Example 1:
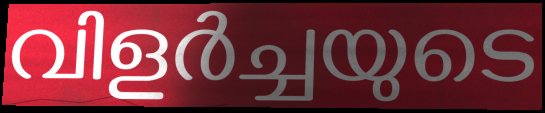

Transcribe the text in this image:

വിളർച്ചയുടെ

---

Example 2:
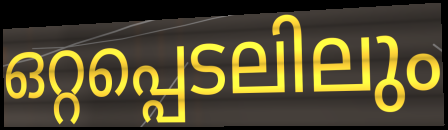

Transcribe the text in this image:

ഒറ്റപ്പെടലിലും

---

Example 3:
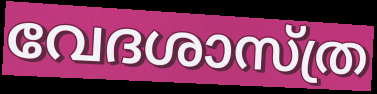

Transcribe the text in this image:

വേദശാസ്ത്ര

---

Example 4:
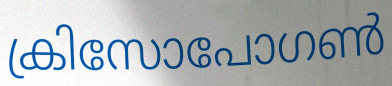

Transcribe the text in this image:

ക്രിസോപോഗൺ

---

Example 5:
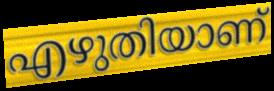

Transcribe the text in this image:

എഴുതിയാണ്